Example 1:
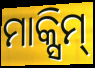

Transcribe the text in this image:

ମାକ୍ସିମ୍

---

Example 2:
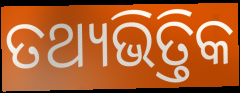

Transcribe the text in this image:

ତଥ୍ୟଭିତ୍ତିକ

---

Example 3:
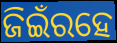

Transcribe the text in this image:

ଜିଇଁରହେ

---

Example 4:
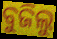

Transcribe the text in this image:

ବୁଜିଲୁ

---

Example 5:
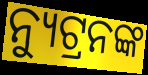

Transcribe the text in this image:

ନ୍ୟୁଟ୍ରନଙ୍କ